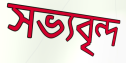
সভ্যবৃন্দ